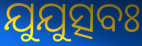
ଯୁଯୁତ୍ସବଃ